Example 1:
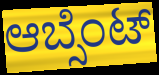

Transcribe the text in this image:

ಆಬ್ಸೆಂಟ್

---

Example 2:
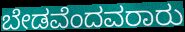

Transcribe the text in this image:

ಬೇಡವೆಂದವರಾರು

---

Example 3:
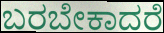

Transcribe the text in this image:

ಬರಬೇಕಾದರೆ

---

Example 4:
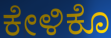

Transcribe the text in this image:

ಕೇಳಿಕೊ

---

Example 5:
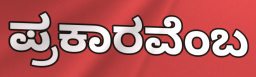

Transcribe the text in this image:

ಪ್ರಕಾರವೆಂಬ